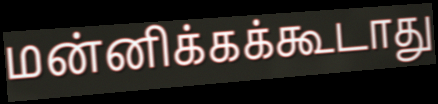
மன்னிக்கக்கூடாது